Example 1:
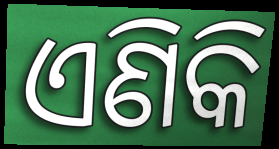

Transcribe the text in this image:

ଏଣିକି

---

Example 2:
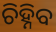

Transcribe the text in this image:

ଚିହ୍ନିବ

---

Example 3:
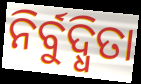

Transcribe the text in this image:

ନିର୍ବୁଦ୍ଧିତା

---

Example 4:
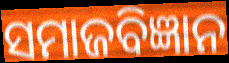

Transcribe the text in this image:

ସମାଜବିଜ୍ଞାନ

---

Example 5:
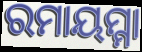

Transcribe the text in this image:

ରମାୟମ୍ମା